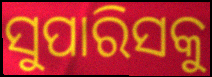
ସୁପାରିସକୁ